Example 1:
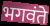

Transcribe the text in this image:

भगवंते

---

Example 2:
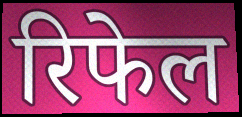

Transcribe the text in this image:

रिफेल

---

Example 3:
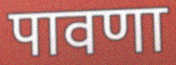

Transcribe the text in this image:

पावणा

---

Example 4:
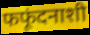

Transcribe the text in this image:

फफूंदनाशी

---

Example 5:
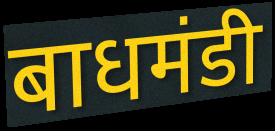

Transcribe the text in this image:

बाधमंडी